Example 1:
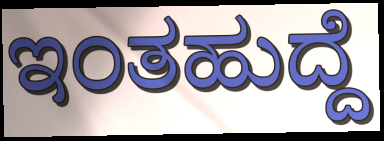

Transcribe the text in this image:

ಇಂತಹುದ್ದೆ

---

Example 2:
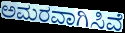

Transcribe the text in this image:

ಅಮರವಾಗಿಸಿವೆ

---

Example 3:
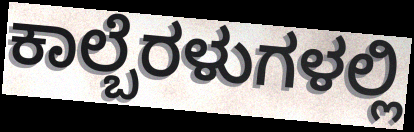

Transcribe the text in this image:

ಕಾಲ್ಬೆರಳುಗಳಲ್ಲಿ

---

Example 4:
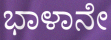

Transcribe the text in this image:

ಭಾಳಾನೇ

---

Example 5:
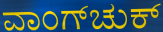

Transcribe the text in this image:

ವಾಂಗ್‌ಚುಕ್